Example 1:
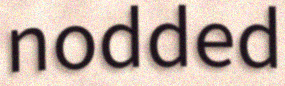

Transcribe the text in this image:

nodded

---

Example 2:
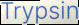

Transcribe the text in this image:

Trypsin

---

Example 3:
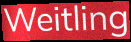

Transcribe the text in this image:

Weitling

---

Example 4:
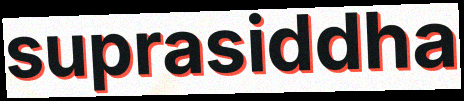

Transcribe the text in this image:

suprasiddha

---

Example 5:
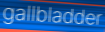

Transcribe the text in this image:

gallbladder